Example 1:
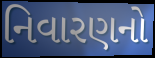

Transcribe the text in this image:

નિવારણનો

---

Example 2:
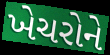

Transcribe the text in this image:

ખેચરોને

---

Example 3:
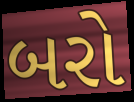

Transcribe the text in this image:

બરો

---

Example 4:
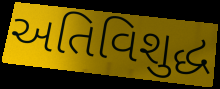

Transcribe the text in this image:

અતિવિશુદ્ધ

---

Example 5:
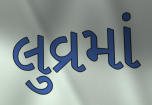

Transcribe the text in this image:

લુવ્રમાં